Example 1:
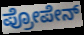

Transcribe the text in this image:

ಪ್ರೋಪೇನ್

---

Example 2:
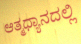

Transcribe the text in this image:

ಆತ್ಮಧ್ಯಾನದಲ್ಲಿ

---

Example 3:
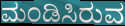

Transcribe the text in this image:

ಮಂಡಿಸಿರುವ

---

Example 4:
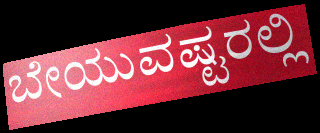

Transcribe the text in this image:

ಬೇಯುವಷ್ಟರಲ್ಲಿ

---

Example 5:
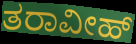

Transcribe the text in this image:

ತರಾವೀಹ್